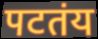
पटतंय